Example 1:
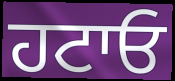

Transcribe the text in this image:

ਹਟਾਓ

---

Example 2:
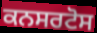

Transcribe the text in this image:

ਕਨਸਰਟੋਸ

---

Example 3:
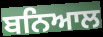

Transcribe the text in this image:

ਬਨਿਆਲ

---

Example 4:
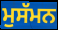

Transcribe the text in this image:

ਮੁਸੱਮਨ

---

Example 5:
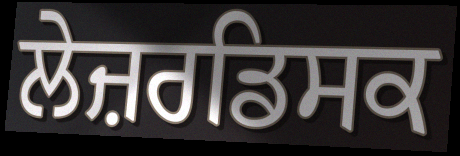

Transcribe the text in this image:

ਲੇਜ਼ਰਡਿਸਕ